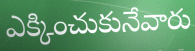
ఎక్కించుకునేవారు